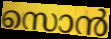
സൊൻ